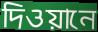
দিওয়ানে